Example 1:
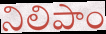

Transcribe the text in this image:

నిలిపాం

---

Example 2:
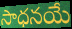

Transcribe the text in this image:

సాధనయే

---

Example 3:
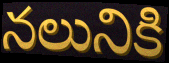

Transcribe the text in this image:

నలునికి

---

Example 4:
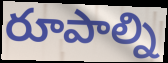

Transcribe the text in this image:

రూపాల్ని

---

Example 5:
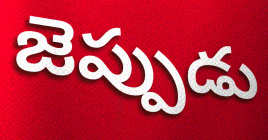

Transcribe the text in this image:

జెప్పుడు